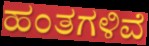
ಹಂತಗಳಿವೆ